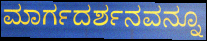
ಮಾರ್ಗದರ್ಶನವನ್ನೂ